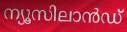
ന്യൂസിലാൻഡ്